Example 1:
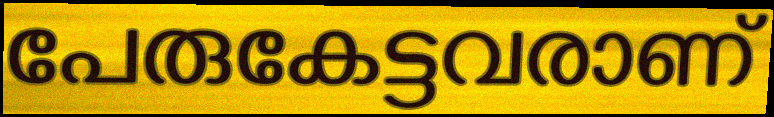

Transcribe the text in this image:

പേരുകേട്ടവരാണ്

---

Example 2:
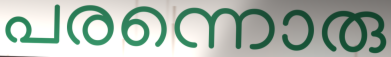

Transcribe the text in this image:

പരന്നൊരു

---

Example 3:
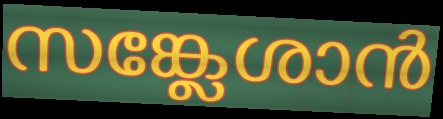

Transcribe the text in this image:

സങ്ക്ലേശാൻ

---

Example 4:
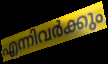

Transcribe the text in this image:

എന്നിവർക്കും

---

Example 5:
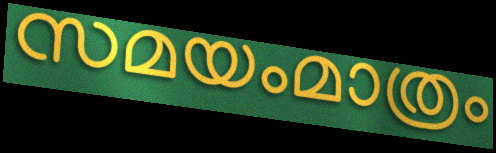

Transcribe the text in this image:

സമയംമാത്രം